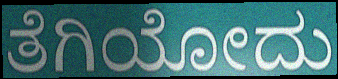
ತೆಗಿಯೋದು